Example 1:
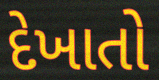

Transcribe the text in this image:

દેખાતો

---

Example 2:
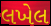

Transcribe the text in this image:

લખેલ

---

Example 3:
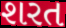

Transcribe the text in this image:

શરત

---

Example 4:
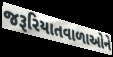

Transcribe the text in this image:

જરૂરિયાતવાળાઓને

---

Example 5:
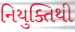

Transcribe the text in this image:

નિયુક્તિથી